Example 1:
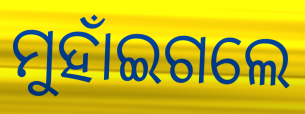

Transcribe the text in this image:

ମୁହାଁଇଗଲେ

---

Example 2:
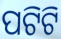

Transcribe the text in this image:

ପଟିଟି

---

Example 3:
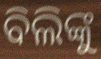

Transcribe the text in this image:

ବିଲିଙ୍କୁ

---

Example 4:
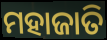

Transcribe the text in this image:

ମହାଜାତି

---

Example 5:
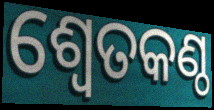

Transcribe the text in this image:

ଶ୍ୱେତକଣ୍ଠ